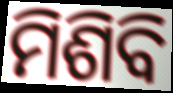
ମିଶିବି